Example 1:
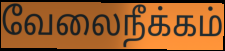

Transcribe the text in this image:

வேலைநீக்கம்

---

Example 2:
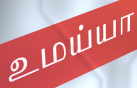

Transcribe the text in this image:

உமய்யா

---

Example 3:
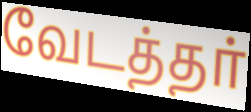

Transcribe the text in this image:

வேடத்தர்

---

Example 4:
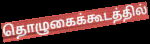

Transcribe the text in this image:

தொழுகைக்கூடத்தில்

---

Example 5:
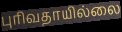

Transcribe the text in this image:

புரிவதாயில்லை